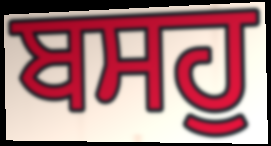
ਬਸਹੁ